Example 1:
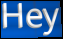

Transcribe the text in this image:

Hey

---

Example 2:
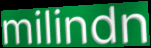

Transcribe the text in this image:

milindn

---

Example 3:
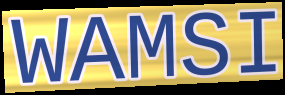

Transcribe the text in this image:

WAMSI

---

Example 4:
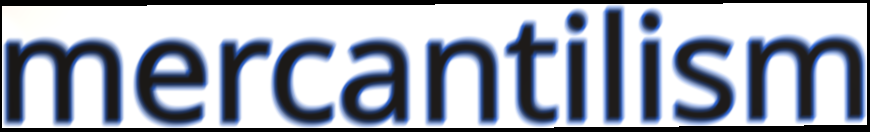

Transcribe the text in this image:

mercantilism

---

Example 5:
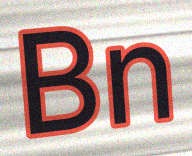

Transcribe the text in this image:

Bn